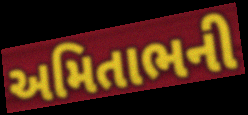
અમિતાભની